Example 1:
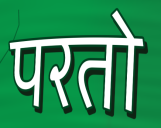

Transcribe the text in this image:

परतो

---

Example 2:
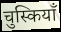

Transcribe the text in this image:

चुस्कियाँ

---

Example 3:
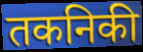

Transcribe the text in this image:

तकनिकी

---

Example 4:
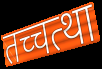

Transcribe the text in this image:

तच्चत्था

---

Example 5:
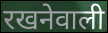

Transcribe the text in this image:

रखनेवाली